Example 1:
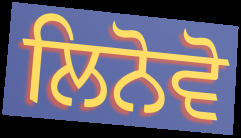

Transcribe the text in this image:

ਲਿਨੋਵੋ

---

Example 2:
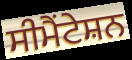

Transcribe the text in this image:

ਸੀਮੈਂਟੇਸ਼ਨ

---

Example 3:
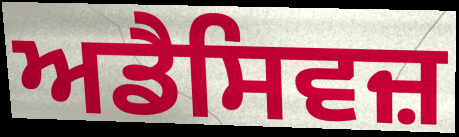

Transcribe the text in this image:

ਅਡੈਸਿਵਜ਼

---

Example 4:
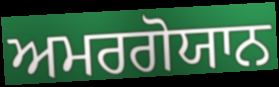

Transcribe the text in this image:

ਅਮਰਗੋਯਾਨ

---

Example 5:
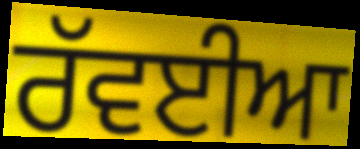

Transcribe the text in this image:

ਰੱਵਈਆ